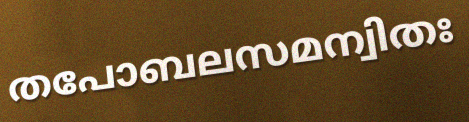
തപോബലസമന്വിതഃ